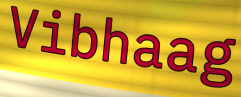
Vibhaag